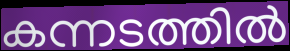
കന്നടത്തിൽ